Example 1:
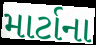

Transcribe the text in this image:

માર્ટાના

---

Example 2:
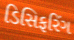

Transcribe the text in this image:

ડિસિફરિંગ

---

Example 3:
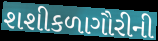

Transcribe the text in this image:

શશીકળાગૌરીની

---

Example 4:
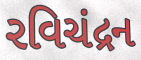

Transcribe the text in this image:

રવિચંદ્રન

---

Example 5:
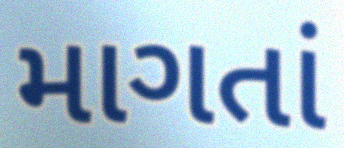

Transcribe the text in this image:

માગતાં